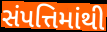
સંપત્તિમાંથી